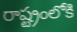
రాష్ట్రంలోకి